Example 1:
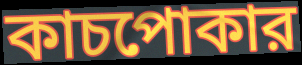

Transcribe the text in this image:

কাচপোকার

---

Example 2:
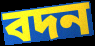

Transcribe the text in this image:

বদন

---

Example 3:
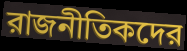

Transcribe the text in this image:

রাজনীতিকদের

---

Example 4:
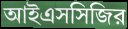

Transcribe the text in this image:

আইএসসিজির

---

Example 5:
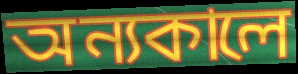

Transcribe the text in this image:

অন্যকালে